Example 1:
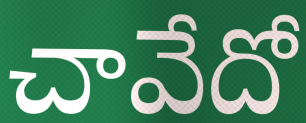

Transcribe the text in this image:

చావేదో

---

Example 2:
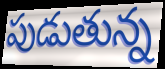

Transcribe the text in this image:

పుడుతున్న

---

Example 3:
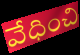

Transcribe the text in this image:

వేధించి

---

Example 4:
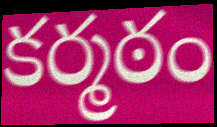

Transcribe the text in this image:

కర్మఠం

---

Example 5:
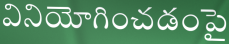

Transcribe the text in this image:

వినియోగించడంపై